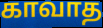
காவாத